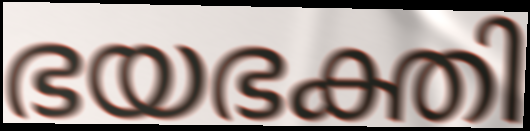
ഭയഭക്തി